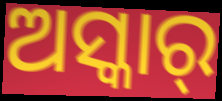
ଅସ୍କାର୍